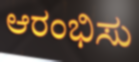
ಆರಂಭಿಸು